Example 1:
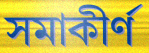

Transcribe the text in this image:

সমাকীর্ণ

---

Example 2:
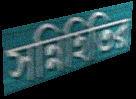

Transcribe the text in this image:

সন্নিহিতির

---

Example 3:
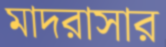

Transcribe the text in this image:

মাদরাসার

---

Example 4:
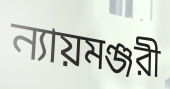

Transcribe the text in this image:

ন্যায়মঞ্জরী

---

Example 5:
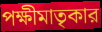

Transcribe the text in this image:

পক্ষীমাতৃকার